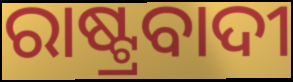
ରାଷ୍ଟ୍ରବାଦୀ